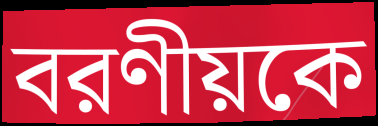
বরণীয়কে